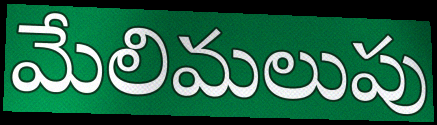
మేలిమలుపు